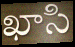
ఖాసి